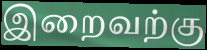
இறைவற்கு